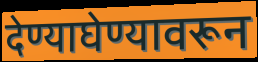
देण्याघेण्यावरून